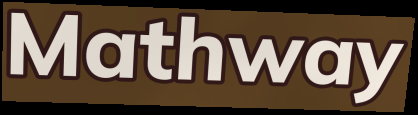
Mathway